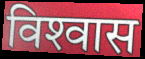
विश्‍वास